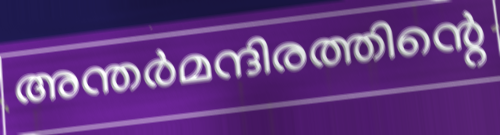
അന്തർമന്ദിരത്തിന്റെ